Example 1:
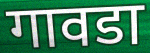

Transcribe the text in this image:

गावडा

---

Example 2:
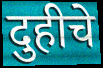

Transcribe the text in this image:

दुहीचे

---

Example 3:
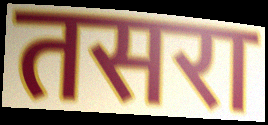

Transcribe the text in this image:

तसरा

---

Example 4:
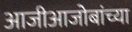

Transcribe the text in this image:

आजीआजोबांच्या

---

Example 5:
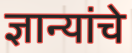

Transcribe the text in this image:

ज्ञान्यांचे